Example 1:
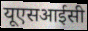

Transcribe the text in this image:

यूएसआईसी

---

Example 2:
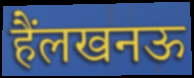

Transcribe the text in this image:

हैंलखनऊ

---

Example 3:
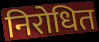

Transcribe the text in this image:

निरोधित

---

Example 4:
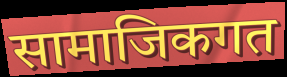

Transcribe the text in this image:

सामाजिकगत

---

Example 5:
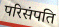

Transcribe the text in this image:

परिसंपति